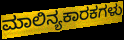
ಮಾಲಿನ್ಯಕಾರಕಗಳು